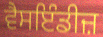
ਵੈਸਇੰਡੀਜ਼